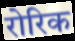
रोरिक